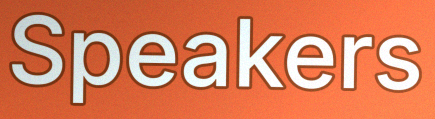
Speakers